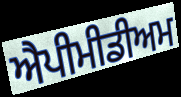
ਐਪੀਮੀਡੀਅਮ